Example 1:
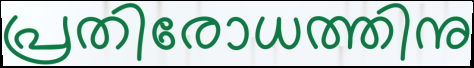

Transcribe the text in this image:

പ്രതിരോധത്തിനു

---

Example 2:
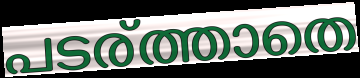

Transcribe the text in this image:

പടര്ത്താതെ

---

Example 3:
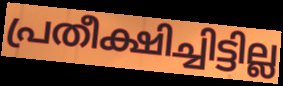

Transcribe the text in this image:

പ്രതീക്ഷിച്ചിട്ടില്ല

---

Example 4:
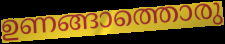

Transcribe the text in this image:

ഉണങ്ങാത്തൊരു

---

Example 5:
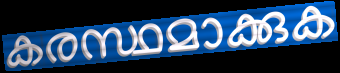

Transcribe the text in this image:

കരസ്ഥമാക്കുക